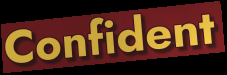
Confident